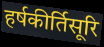
हर्षकीर्तिसूरि